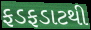
ફડફડાટથી